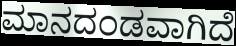
ಮಾನದಂಡವಾಗಿದೆ